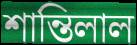
শান্তিলাল